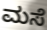
ಮಸೆ